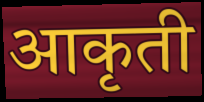
आकृती